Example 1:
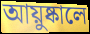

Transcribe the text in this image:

আয়ুষ্কালে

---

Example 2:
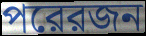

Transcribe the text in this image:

পরেরজন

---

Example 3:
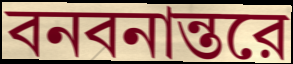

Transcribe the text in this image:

বনবনান্তরে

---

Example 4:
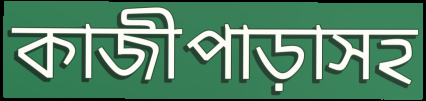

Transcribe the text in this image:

কাজীপাড়াসহ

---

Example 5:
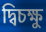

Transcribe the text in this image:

দ্বিচক্ষু